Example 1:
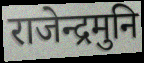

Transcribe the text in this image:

राजेन्द्रमुनि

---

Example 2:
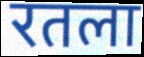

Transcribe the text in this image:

रतला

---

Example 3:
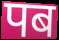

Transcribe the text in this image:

पब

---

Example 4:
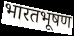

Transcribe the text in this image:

भारतभूषण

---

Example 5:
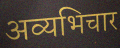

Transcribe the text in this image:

अव्यभिचार